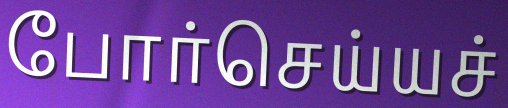
போர்செய்யச்